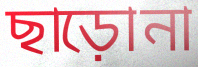
ছাড়োনা